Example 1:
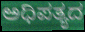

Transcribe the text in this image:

ಅಧಿಪತ್ಯದ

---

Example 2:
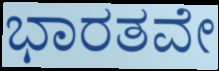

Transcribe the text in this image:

ಭಾರತವೇ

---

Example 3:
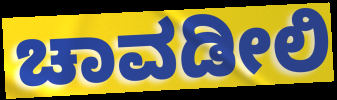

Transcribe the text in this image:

ಚಾವಡೀಲಿ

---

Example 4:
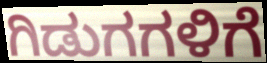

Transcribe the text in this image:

ಗಿಡುಗಗಳಿಗೆ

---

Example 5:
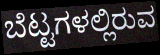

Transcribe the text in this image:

ಬೆಟ್ಟಗಳಲ್ಲಿರುವ